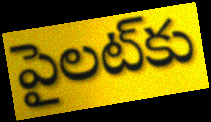
పైలట్‌కు